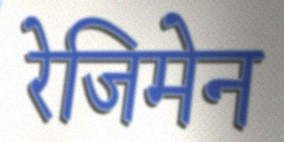
रेजिमेन